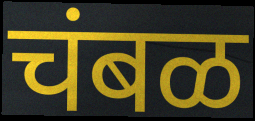
चंबळ